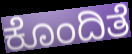
ಕೊಂದಿತೆ